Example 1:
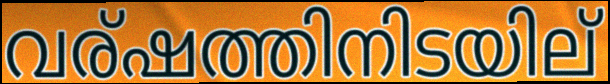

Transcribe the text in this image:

വര്ഷത്തിനിടയില്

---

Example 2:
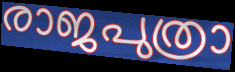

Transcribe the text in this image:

രാജപുത്രാ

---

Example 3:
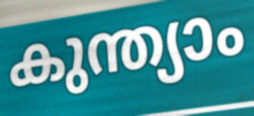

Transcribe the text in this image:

കുന്ത്യാം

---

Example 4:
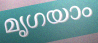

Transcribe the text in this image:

മൃഗയാം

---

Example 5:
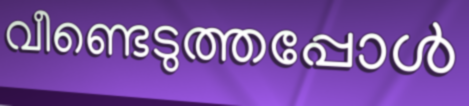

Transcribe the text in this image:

വീണ്ടെടുത്തപ്പോൾ